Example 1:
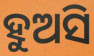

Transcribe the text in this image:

ହୁଅସି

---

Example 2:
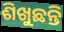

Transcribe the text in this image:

ଶିଖୁଛନ୍ତି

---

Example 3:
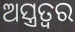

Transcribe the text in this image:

ଅସ୍ତ୍ରତ୍ୱର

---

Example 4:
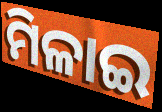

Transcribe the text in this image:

ମିଳାଇ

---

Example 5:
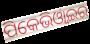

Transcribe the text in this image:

ପିକେଭିଓ୍ବାଇର